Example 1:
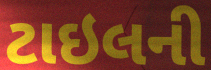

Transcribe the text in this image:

ટાઇલની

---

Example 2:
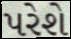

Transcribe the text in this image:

પરેશે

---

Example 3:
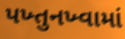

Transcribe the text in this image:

પખ્તુનખ્વામાં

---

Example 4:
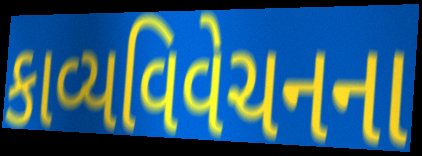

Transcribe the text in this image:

કાવ્યવિવેચનના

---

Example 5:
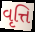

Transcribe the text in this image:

વૃત્તિ